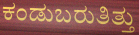
ಕಂಡುಬರುತಿತ್ತು